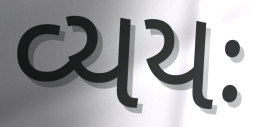
વ્યયઃ